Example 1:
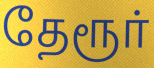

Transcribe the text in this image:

தேரூர்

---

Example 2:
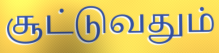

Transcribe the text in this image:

சூட்டுவதும்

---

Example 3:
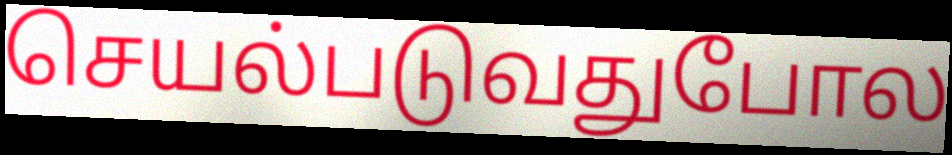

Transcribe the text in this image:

செயல்படுவதுபோல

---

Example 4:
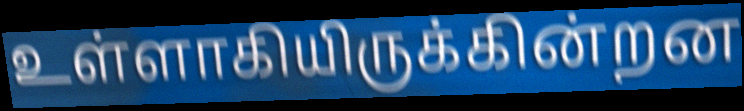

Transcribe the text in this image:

உள்ளாகியிருக்கின்றன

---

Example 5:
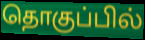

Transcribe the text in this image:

தொகுப்பில்